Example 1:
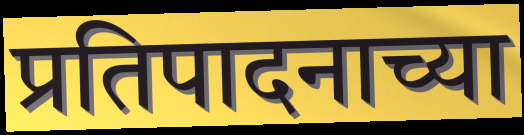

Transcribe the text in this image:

प्रतिपादनाच्या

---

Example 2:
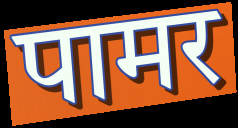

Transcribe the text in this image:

पामर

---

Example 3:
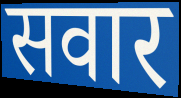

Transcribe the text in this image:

सवार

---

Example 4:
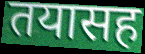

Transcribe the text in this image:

तयासह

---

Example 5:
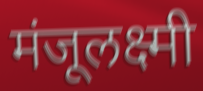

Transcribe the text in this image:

मंजूलक्ष्मी